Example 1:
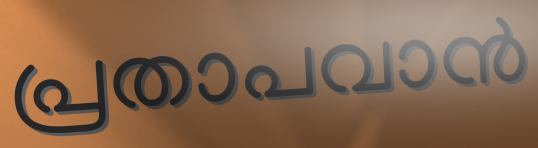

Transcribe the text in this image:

പ്രതാപവാൻ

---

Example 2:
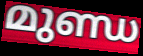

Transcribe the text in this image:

മുണ്ഡ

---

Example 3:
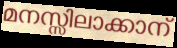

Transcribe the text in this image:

മനസ്സിലാക്കാന്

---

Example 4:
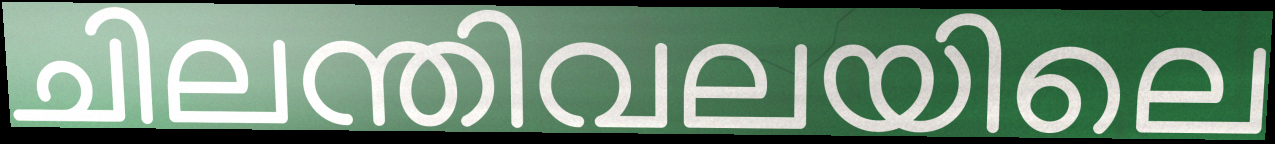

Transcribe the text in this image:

ചിലന്തിവലയിലെ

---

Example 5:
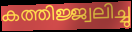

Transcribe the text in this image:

കത്തിജ്ജ്വലിച്ചു